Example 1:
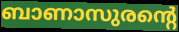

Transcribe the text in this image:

ബാണാസുരന്റെ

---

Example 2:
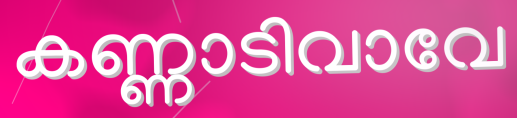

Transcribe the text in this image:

കണ്ണാടിവാവേ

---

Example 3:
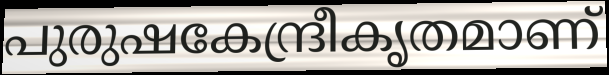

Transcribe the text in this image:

പുരുഷകേന്ദ്രീകൃതമാണ്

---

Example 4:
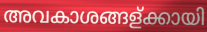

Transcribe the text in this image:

അവകാശങ്ങള്ക്കായി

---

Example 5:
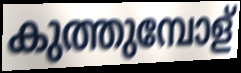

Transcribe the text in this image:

കുത്തുമ്പോള്